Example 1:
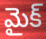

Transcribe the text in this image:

మైక్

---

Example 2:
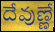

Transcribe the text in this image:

దేవుణ్ణే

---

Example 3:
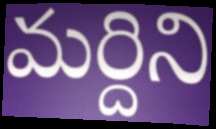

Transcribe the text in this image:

మర్దిని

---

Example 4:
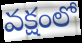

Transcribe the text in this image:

వక్షంలో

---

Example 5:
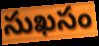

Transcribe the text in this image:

సుఖసం